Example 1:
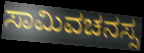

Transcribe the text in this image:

ಸಾಮಿವಚನಸ್ಸ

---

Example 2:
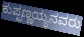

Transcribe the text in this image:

ಕುಪ್ಪಣ್ಣಯ್ಯನವರು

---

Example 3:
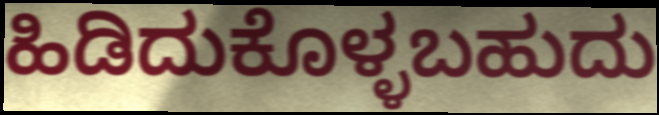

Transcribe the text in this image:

ಹಿಡಿದುಕೊಳ್ಳಬಹುದು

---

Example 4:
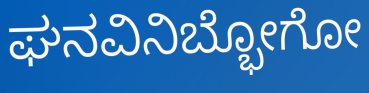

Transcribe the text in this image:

ಘನವಿನಿಬ್ಭೋಗೋ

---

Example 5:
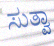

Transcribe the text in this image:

ಸುತ್ವಾ